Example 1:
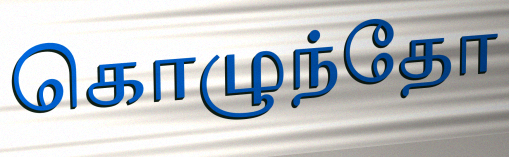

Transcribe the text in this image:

கொழுந்தோ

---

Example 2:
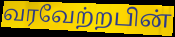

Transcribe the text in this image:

வரவேற்றபின்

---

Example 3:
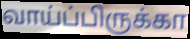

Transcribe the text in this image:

வாய்ப்பிருக்கா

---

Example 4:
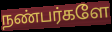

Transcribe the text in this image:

நண்பர்களே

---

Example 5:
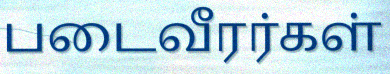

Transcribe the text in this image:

படைவீரர்கள்